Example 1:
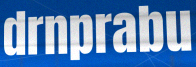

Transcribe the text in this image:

drnprabu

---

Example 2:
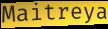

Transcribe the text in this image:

Maitreya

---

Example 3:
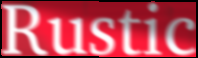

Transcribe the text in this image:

Rustic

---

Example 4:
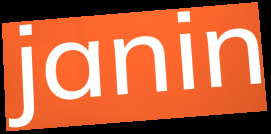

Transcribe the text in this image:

janin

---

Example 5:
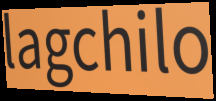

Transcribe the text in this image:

lagchilo